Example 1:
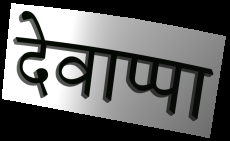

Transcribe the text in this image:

देवाप्पा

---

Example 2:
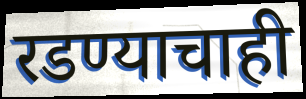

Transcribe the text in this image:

रडण्याचाही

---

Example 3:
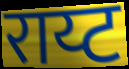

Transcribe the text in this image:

राय्ट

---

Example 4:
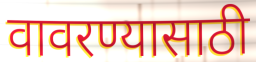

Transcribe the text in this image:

वावरण्यासाठी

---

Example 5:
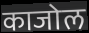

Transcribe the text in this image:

काजोल